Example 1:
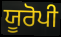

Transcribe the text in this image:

ਯੂਰੋਪੀ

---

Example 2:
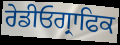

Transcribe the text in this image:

ਰੇਡੀਓਗ੍ਰਾਫਿਕ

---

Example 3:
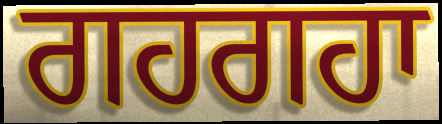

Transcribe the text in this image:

ਗਹਗਹਾ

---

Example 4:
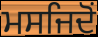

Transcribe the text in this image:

ਮਸਜਿਦੋਂ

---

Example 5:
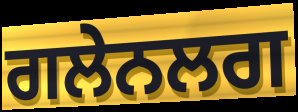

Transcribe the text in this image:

ਗਲੇਨਲਗ